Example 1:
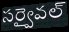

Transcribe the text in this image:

సర్వైవల్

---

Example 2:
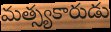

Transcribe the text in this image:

మత్స్యకారుడు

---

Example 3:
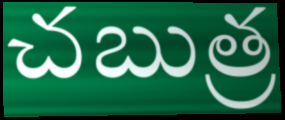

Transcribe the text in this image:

చబుత్ర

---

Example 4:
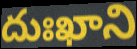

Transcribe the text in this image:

దుఃఖాని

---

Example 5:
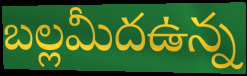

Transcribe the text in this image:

బల్లమీదఉన్న